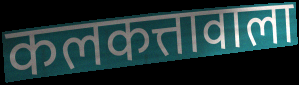
कलकत्तावाला